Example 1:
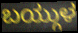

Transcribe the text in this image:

ಬಯ್ಗುಳ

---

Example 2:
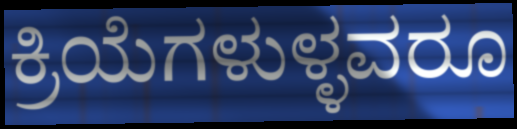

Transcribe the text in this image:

ಕ್ರಿಯೆಗಳುಳ್ಳವರೂ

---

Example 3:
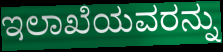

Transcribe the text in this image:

ಇಲಾಖೆಯವರನ್ನು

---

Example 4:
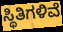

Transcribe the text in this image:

ಸ್ಥಿತಿಗಳಿವೆ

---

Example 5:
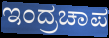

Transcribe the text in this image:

ಇಂದ್ರಚಾಪ